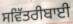
ਸਵਿੱਤਰੀਬਾਈ